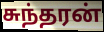
சுந்தரன்